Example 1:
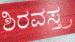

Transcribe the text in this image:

ಶಿರವಸ್ತ್ರ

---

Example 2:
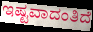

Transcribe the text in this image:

ಇಷ್ಟವಾದಂತಿದೆ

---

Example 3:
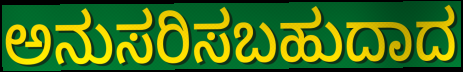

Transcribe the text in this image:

ಅನುಸರಿಸಬಹುದಾದ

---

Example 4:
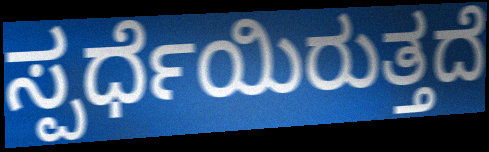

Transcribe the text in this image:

ಸ್ಪರ್ಧೆಯಿರುತ್ತದೆ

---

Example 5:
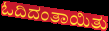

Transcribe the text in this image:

ಓದಿದಂತಾಯಿತು